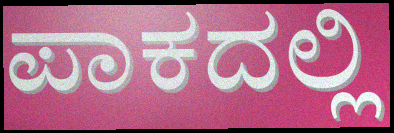
ಪಾಕದಲ್ಲಿ